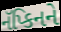
નૅપ્કિનને